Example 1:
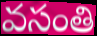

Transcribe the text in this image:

వసంతి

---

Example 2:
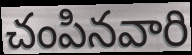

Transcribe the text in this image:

చంపినవారి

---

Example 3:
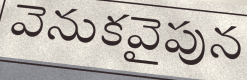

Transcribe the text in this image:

వెనుకవైపున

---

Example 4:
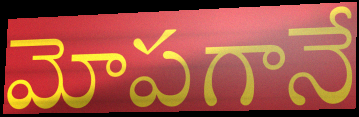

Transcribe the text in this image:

మోపగానే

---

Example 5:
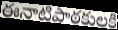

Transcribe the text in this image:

ఈనాటిపాఠకులకి